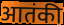
आतंकी